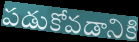
పడుకోవడానికి